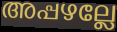
അപ്പഴല്ലേ